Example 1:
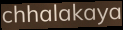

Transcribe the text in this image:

chhalakaya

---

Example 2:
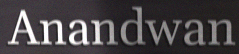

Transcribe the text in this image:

Anandwan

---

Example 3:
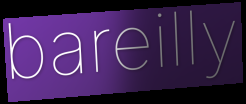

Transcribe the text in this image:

bareilly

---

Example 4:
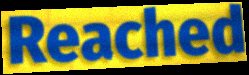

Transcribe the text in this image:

Reached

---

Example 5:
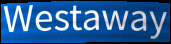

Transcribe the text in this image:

Westaway